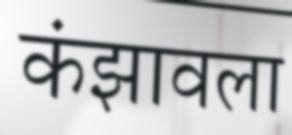
कंझावला